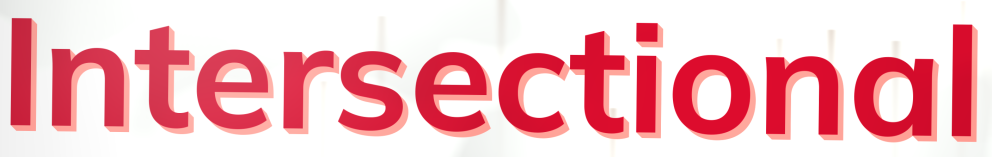
Intersectional